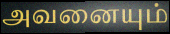
அவனையும்